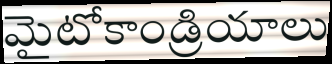
మైటోకాండ్రియాలు